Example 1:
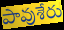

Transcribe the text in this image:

పావుశేరు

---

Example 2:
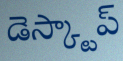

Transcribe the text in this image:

డెస్క్టాప్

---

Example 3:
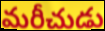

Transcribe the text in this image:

మరీచుడు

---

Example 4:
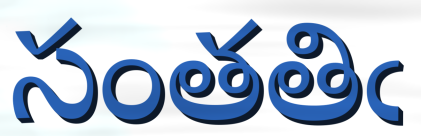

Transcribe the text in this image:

సంతతిఁ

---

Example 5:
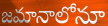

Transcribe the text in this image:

జమానాలోనూ